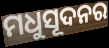
ମଧୁସୂଦନର